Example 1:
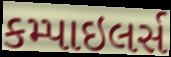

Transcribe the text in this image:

કમ્પાઇલર્સ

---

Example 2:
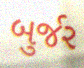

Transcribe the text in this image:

બુર્જર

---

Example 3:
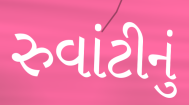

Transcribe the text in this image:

રુવાંટીનું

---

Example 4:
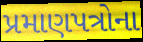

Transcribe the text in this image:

પ્રમાણપત્રોના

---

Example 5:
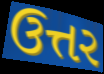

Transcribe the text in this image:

ઉત્તર